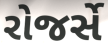
રોજર્સે